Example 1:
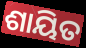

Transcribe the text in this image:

ଶାୟିତ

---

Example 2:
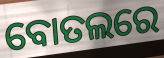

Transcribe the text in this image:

ବୋତଲରେ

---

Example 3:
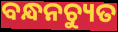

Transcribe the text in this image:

ବନ୍ଧନଚ୍ୟୁତ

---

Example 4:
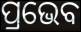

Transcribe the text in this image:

ପ୍ରଭେବ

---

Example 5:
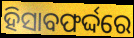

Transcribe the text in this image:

ହିସାବଫର୍ଦ୍ଦରେ